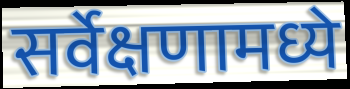
सर्वेक्षणामध्ये